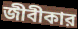
জীবীকার